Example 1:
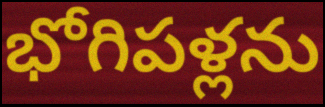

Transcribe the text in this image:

భోగిపళ్లను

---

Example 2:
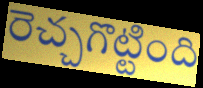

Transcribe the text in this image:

రెచ్చగొట్టింది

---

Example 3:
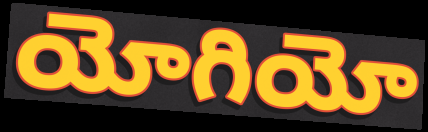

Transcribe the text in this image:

యోగియో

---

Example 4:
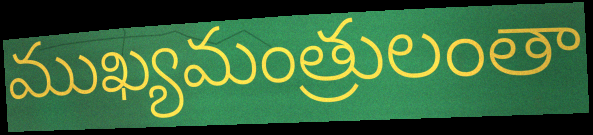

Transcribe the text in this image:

ముఖ్యమంత్రులంతా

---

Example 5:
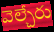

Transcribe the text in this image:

వెల్చేరు